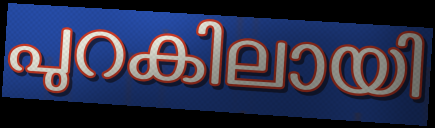
പുറകിലായി